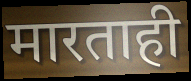
मारताही